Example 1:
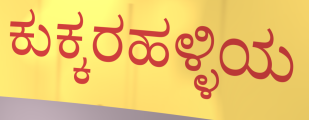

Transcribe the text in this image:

ಕುಕ್ಕರಹಳ್ಳಿಯ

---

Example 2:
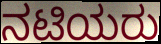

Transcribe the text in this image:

ನಟಿಯರು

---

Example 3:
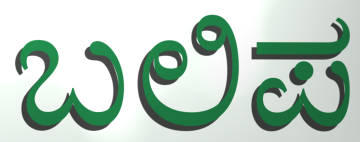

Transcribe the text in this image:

ಬಲಿಪ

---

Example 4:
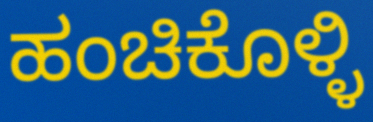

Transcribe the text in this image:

ಹಂಚಿಕೊಳ್ಳಿ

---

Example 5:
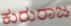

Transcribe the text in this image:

ಕುರುರಾಜ